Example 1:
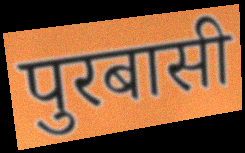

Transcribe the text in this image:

पुरबासी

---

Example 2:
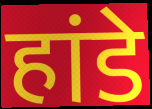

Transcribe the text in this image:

हांडे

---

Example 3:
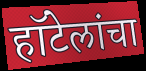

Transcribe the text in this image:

हॉटेलांचा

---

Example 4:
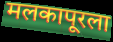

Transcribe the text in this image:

मलकापूरला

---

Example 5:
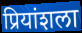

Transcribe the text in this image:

प्रियांशला